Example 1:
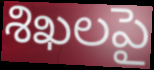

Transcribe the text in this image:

శిఖలపై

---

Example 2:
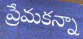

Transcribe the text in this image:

ప్రేమకన్నా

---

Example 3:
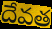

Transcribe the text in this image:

దేవత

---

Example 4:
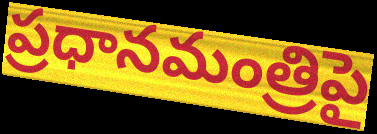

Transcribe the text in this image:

ప్రధానమంత్రిపై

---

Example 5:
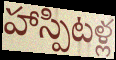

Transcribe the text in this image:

హాస్పిటళ్ల